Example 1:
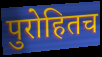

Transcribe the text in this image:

पुरोहितच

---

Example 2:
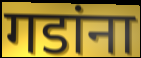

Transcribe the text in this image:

गडांना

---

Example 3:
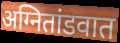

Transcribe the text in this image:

अग्नितांडवात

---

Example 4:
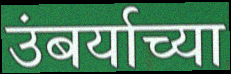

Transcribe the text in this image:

उंबर्याच्या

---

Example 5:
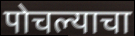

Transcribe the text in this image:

पोचल्याचा